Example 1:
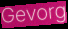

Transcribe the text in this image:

Gevorg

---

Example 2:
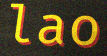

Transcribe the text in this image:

lao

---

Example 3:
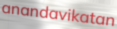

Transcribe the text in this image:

anandavikatan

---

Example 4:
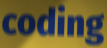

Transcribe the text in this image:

coding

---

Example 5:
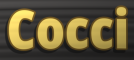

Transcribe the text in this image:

Cocci